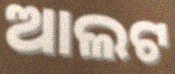
ଆଲଟ